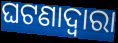
ଘଟଣାଦ୍ୱାରା